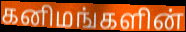
கனிமங்களின்